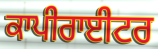
ਕਾਪੀਰਾਈਟਰ